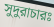
সুদুরাচারঃ